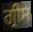
ਗ੍ਰੀਸ